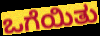
ಒಗೆಯಿತು